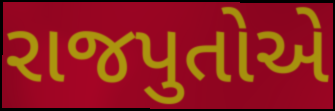
રાજપુતોએ